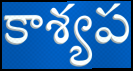
కాశ్యప